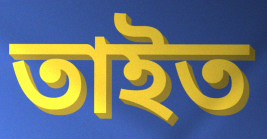
তাইত